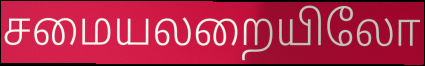
சமையலறையிலோ